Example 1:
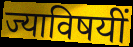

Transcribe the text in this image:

ज्याविषयीं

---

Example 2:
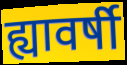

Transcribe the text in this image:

ह्यावर्षी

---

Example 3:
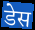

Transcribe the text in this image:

डेस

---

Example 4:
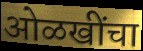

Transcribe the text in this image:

ओळखींचा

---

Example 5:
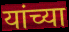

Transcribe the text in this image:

यांच्‍या